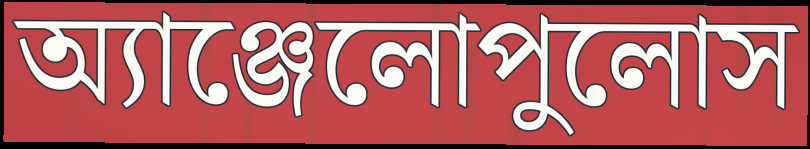
অ্যাঞ্জেলোপুলোস